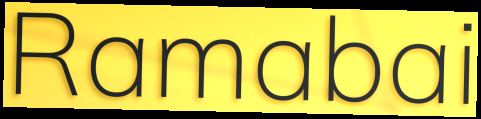
Ramabai